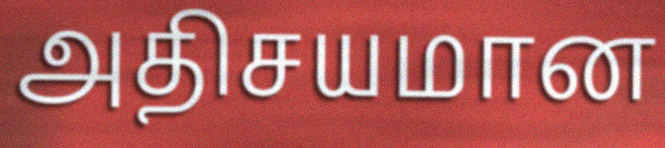
அதிசயமான